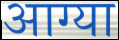
आग्या